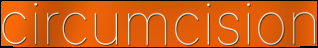
circumcision